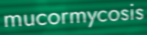
mucormycosis